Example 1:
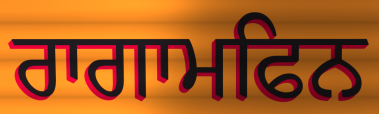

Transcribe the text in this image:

ਰਾਗਾਮਫਿਨ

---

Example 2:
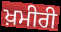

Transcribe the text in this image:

ਖ਼ਮੀਰੀ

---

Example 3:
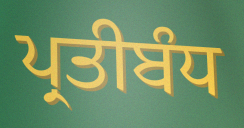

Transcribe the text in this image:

ਪ੍ਰਤੀਬੰਧ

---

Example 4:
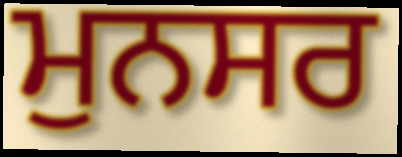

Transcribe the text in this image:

ਮੁਨਸਰ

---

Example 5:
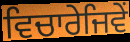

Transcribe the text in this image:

ਵਿਚਾਰੇਜਿਵੇਂ